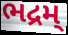
ભદ્રમ્